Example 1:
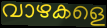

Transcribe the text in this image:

വാഴകളെ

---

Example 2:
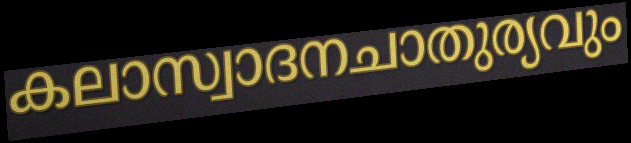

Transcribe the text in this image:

കലാസ്വാദനചാതുര്യവും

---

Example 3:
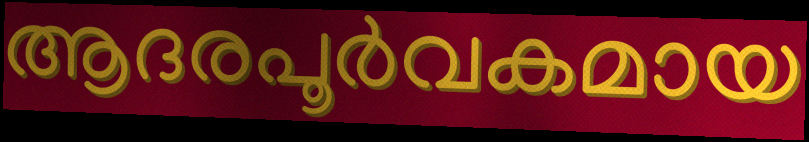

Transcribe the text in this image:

ആദരപൂർവകമായ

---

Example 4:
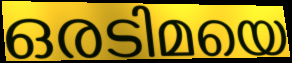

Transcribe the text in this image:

ഒരടിമയെ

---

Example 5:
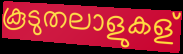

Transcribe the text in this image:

കൂടുതലാളുകള്